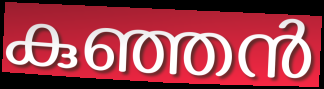
കുഞ്ഞൻ